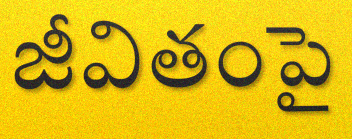
జీవితంపై